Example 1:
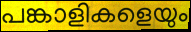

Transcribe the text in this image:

പങ്കാളികളെയും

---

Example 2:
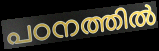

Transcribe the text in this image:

പഠനത്തിൽ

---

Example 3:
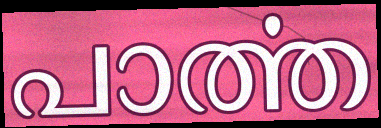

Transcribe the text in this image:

പാൎത്ത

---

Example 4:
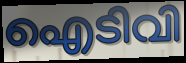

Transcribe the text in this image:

ഐടിവി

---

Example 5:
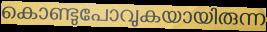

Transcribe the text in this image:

കൊണ്ടുപോവുകയായിരുന്ന